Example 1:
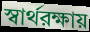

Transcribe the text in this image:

স্বার্থরক্ষায়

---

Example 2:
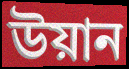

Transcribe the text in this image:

উয়ান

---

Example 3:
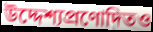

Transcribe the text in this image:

উদ্দেশ্যপ্রণোদিতও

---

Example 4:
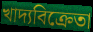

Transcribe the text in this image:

খাদ্যবিক্রেতা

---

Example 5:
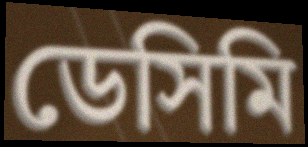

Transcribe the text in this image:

ডেসিমি